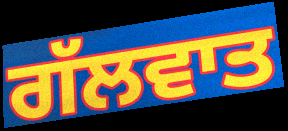
ਗੱਲਵਾਤ